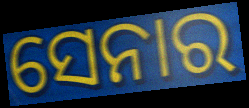
ସେନାର